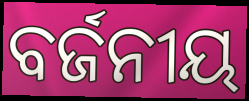
ବର୍ଜନୀୟ